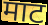
माट